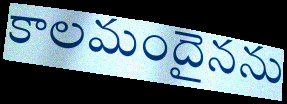
కాలమందైనను